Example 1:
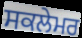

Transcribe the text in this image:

ਸਕਲੇਮਰ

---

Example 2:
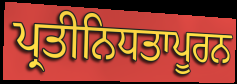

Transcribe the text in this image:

ਪ੍ਰਤੀਨਿਧਤਾਪੂਰਨ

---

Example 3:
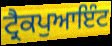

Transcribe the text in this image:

ਟ੍ਰੈਕਪੁਆਇੰਟ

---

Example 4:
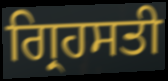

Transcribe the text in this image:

ਗ੍ਰਿਹਸਤੀ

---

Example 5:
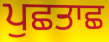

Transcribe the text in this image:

ਪੁਛਤਾਛ